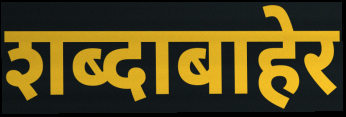
शब्दाबाहेर